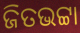
ଜିତଭଟ୍ଟା